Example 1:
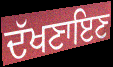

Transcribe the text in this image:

ਦੱਖਣਾਇਣ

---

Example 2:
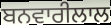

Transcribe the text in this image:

ਬਨਵਾਰੀਲਾਲ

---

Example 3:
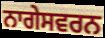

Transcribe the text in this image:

ਨਾਗੇਸਵਰਨ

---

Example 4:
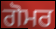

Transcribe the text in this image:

ਗੋਮਰ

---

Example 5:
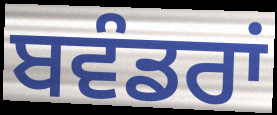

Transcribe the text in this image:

ਬਵੰਡਰਾਂ